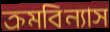
ক্ৰমবিন্যাস